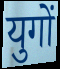
युगों